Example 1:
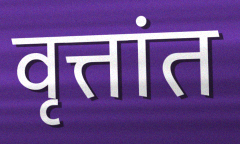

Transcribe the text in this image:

वृत्तांत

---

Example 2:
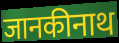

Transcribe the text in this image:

जानकीनाथ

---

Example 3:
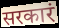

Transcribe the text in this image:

सरकारं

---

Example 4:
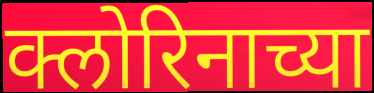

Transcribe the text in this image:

क्लोरिनाच्या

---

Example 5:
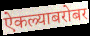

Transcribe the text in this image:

ऐकल्याबरोबर